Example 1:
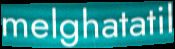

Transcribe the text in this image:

melghatatil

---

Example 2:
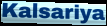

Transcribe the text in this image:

Kalsariya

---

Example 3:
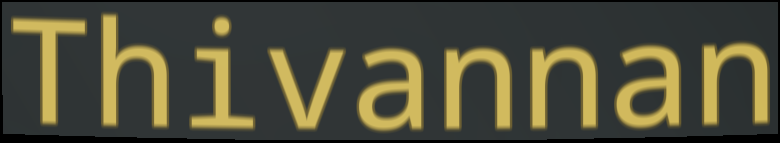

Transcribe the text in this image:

Thivannan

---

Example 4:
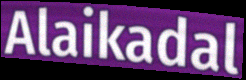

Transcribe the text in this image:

Alaikadal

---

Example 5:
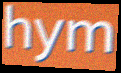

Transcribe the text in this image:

hym